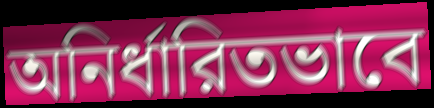
অনির্ধারিতভাবে